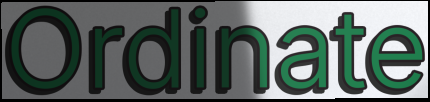
Ordinate